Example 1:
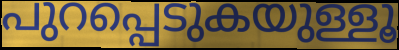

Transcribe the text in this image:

പുറപ്പെടുകയുള്ളൂ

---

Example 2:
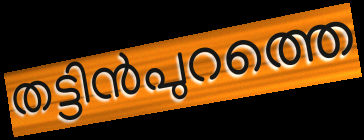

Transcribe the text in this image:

തട്ടിൻപുറത്തെ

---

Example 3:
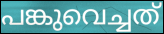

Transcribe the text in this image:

പങ്കുവെച്ചത്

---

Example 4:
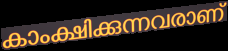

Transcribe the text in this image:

കാംക്ഷിക്കുന്നവരാണ്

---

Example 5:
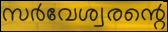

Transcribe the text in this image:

സർവേശ്വരന്റെ